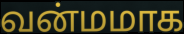
வன்மமாக